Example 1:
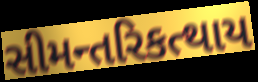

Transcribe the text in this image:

સીમન્તરિકત્થાય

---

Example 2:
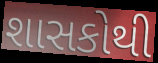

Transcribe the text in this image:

શાસકોથી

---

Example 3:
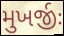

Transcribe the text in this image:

મુખર્જીઃ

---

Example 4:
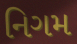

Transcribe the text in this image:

નિગમ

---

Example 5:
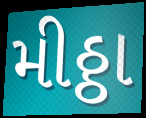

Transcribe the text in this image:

મીઠ્ઠા